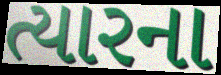
ત્યારના